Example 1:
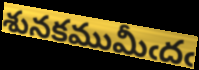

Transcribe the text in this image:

శునకముమీఁదఁ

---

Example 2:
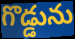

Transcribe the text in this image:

గొడ్డును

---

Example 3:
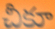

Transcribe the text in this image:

చీకూ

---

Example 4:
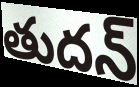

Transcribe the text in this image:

తుదన్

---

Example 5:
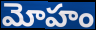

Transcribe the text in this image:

మోహం